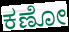
ಕಣೋ